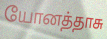
யோனத்தாசு